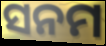
ସନମ